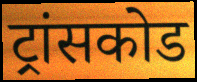
ट्रांसकोड